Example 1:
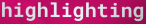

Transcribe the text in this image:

highlighting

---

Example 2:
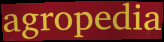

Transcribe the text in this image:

agropedia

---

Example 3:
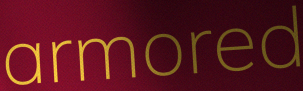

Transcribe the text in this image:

armored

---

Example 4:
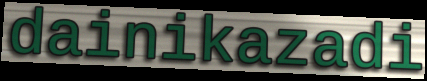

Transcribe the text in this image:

dainikazadi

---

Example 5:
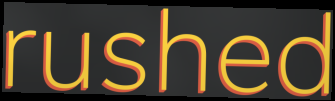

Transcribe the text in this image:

rushed